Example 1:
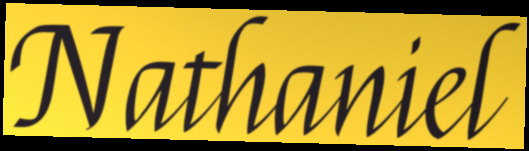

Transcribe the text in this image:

Nathaniel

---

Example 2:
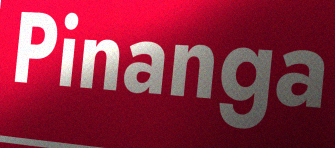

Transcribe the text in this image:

Pinanga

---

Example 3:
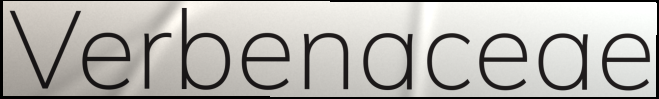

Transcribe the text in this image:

Verbenaceae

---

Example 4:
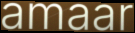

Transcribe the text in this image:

amaar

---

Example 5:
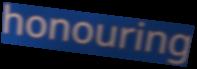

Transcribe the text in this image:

honouring